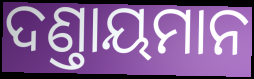
ଦଣ୍ତାୟମାନ